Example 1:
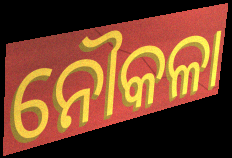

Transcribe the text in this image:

ନୌକଳା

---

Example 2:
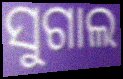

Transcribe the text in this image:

ସୁଗାଲ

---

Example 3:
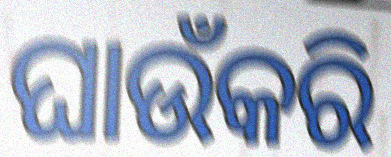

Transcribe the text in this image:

ଘାଉଁକରି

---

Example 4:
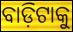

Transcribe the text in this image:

ବାଡ଼ିଟାକୁ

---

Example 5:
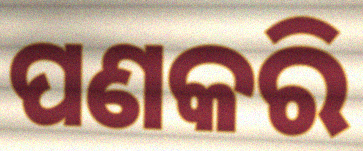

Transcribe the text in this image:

ପଣକରି